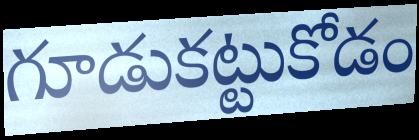
గూడుకట్టుకోడం